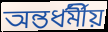
অন্তর্ধর্মীয়